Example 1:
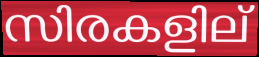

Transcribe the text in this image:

സിരകളില്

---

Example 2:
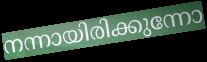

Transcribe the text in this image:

നന്നായിരിക്കുന്നോ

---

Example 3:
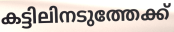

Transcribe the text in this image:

കട്ടിലിനടുത്തേക്ക്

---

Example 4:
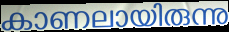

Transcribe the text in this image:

കാണലായിരുന്നു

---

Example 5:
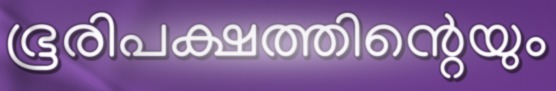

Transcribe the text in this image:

ഭൂരിപക്ഷത്തിന്റെയും